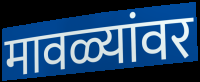
मावळ्यांवर